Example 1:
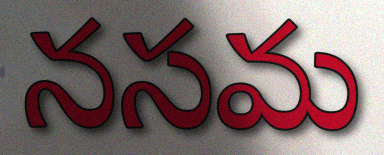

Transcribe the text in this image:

నసమ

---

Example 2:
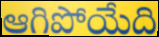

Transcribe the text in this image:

ఆగిపోయేది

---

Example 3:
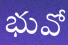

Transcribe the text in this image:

భువో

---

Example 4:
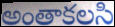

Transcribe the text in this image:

అంతాకలసి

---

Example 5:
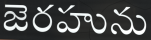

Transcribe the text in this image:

జెరహును